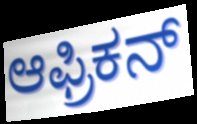
ಆಫ್ರಿಕನ್